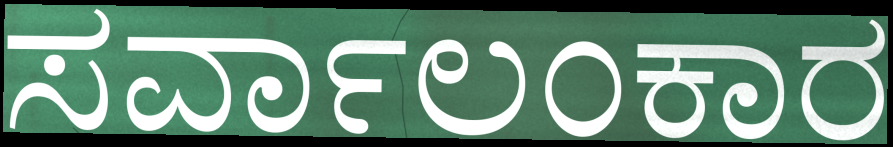
ಸರ್ವಾಲಂಕಾರ